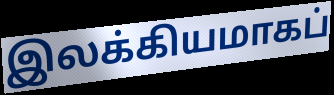
இலக்கியமாகப்